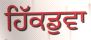
ਹਿੱਕਡੁਵਾ